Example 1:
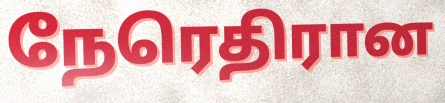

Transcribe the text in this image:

நேரெதிரான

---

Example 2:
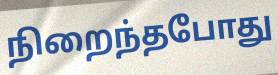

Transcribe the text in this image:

நிறைந்தபோது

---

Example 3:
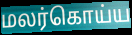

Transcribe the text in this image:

மலர்கொய்ய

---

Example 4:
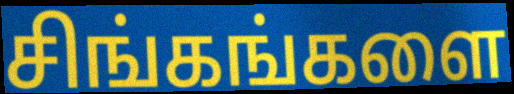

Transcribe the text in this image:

சிங்கங்களை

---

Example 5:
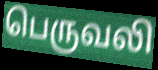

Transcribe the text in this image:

பெருவலி